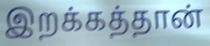
இறக்கத்தான்